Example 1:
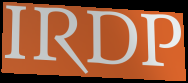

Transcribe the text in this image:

IRDP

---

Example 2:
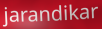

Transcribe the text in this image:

jarandikar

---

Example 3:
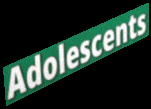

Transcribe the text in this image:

Adolescents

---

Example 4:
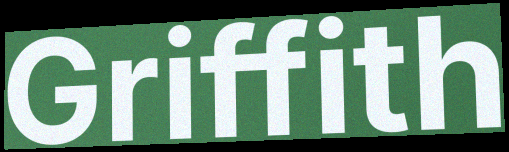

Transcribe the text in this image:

Griffith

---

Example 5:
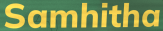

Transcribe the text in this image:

Samhitha